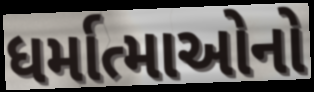
ધર્માત્માઓનો